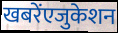
खबरेंएजुकेशन